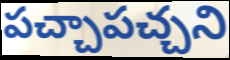
పచ్చాపచ్చని